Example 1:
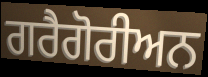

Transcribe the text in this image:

ਗਰੈਗੋਰੀਅਨ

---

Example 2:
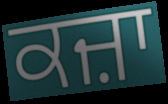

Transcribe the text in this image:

ਕਜ਼ਾ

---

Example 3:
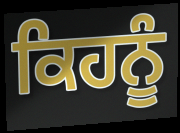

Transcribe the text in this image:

ਕਿਹਨੂੰ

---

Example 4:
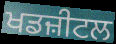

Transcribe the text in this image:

ਖਡਜ਼ੀਟਲ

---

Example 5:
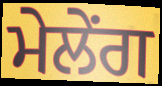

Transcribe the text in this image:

ਮੇਲੇਂਗ